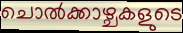
ചൊൽക്കാഴ്ചകളുടെ